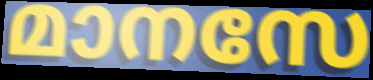
മാനസേ